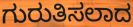
ಗುರುತಿಸಲಾದ